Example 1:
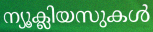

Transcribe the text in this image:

ന്യൂക്ലിയസുകൾ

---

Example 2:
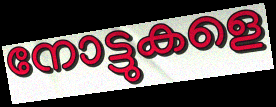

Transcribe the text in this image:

നോട്ടുകളെ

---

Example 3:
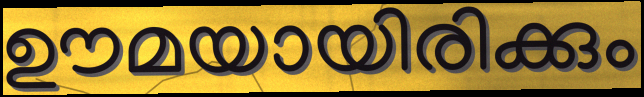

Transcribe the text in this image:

ഊമയായിരിക്കും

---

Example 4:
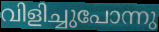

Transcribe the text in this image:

വിളിച്ചുപോന്നു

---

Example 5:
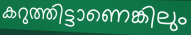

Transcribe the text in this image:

കറുത്തിട്ടാണെങ്കിലും